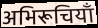
अभिरूचियाँ